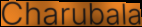
Charubala